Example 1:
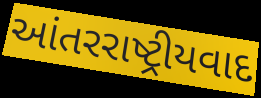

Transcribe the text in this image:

આંતરરાષ્ટ્રીયવાદ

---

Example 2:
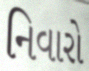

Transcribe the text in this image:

નિવારો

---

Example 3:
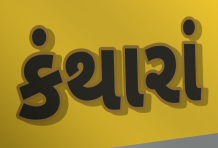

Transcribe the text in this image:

કંથારાં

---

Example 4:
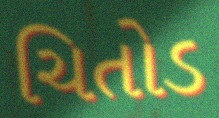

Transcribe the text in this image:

ચિતોડ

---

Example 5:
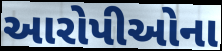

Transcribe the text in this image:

આરોપીઓના